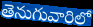
తెనుగువారిలో